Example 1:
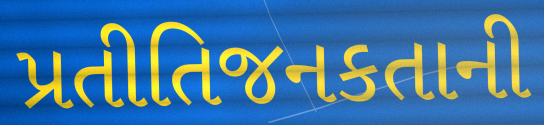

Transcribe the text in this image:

પ્રતીતિજનકતાની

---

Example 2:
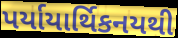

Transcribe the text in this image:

પર્યાયાર્થિકનયથી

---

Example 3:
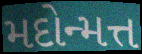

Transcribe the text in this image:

મદોન્મત્ત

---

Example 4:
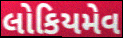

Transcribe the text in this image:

લોકિયમેવ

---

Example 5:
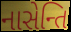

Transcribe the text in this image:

નાસેન્તિ